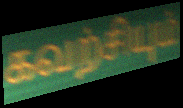
கவற்சியும்